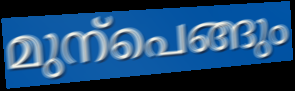
മുന്പെങ്ങും